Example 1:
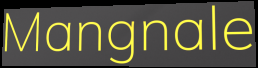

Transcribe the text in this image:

Mangnale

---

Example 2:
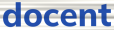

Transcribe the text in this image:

docent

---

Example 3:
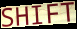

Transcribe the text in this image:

SHIFT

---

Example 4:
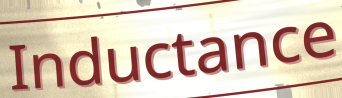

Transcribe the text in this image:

Inductance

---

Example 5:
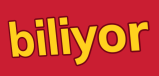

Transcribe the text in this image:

biliyor